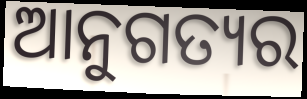
ଆନୁଗତ୍ୟର